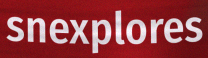
snexplores